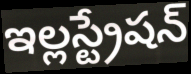
ఇల్లస్ట్రేషన్